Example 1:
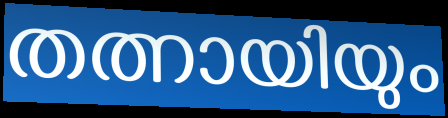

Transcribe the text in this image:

തത്നായിയും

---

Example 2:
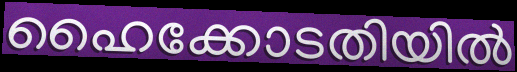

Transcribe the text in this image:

ഹൈക്കോടതിയിൽ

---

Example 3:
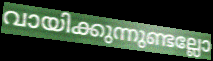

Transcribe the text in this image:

വായിക്കുന്നുണ്ടല്ലോ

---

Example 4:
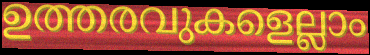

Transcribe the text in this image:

ഉത്തരവുകളെല്ലാം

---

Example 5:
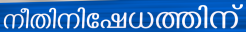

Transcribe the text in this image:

നീതിനിഷേധത്തിന്